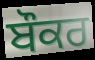
ਬੌਕਰ